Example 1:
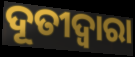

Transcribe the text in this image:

ଦୂତୀଦ୍ୱାରା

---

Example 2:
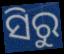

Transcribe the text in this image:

ସିରୁ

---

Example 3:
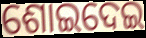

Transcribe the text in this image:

ଶୋଇଦେଇ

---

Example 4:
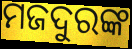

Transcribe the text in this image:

ମଜଦୁରଙ୍କ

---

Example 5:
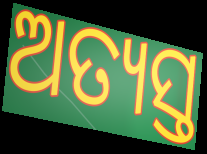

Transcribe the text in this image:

ଅତ୍ୟସ୍ତ